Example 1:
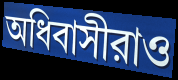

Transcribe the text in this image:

অধিবাসীরাও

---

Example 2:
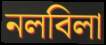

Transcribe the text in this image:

নলবিলা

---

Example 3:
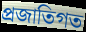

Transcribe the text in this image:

প্রজাতিগত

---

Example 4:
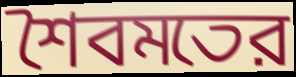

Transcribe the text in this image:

শৈবমতের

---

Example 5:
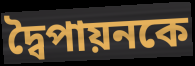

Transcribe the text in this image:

দ্বৈপায়নকে